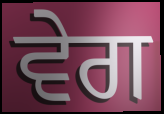
ਵੇਗ